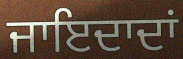
ਜਾਇਦਾਦਾਂ